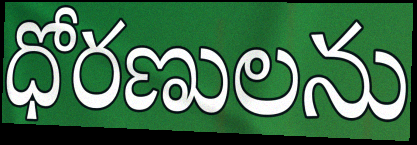
ధోరణులను